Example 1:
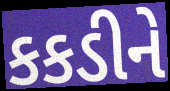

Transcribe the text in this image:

કકડીને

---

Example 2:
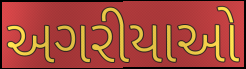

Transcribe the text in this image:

અગરીયાઓ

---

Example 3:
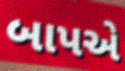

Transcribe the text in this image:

બાપએ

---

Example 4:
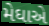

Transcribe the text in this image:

મેઘાએ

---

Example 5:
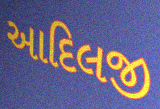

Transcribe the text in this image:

આદિલજી